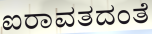
ಐರಾವತದಂತೆ